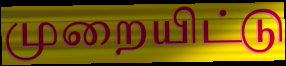
முறையிட்டு